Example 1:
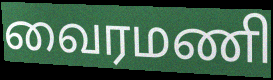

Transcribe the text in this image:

வைரமணி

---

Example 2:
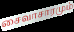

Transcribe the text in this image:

சைவாசாரமும்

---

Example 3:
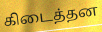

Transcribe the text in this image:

கிடைத்தன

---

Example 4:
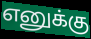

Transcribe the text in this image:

எனுக்கு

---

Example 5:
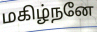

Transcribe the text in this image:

மகிழ்நனே